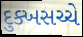
દુક્ખસચ્ચે